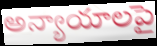
అన్యాయాలపై